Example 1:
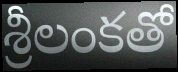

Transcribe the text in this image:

శ్రీలంకతో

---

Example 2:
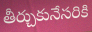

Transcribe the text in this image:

తీర్చుకునేసరికి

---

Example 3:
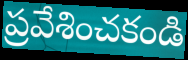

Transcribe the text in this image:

ప్రవేశించకండి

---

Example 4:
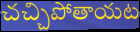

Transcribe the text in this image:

చచ్చిపోతాయట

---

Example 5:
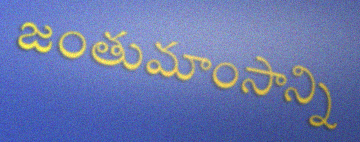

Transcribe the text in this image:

జంతుమాంసాన్ని